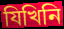
যিখিনি